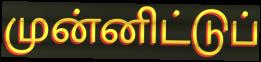
முன்னிட்டுப்